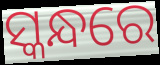
ସ୍କନ୍ଧରେ